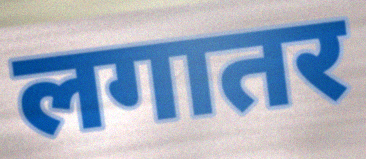
लगातर